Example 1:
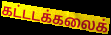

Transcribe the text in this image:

கட்டடக்கலைக்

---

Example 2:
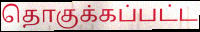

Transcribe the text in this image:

தொகுக்கப்பட்ட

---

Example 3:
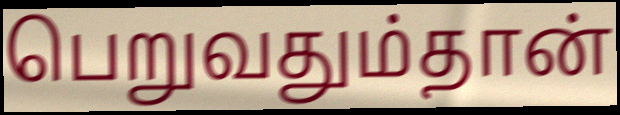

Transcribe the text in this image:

பெறுவதும்தான்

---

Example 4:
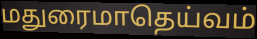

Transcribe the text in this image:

மதுரைமாதெய்வம்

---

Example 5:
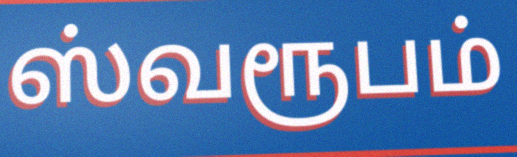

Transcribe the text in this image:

ஸ்வரூபம்